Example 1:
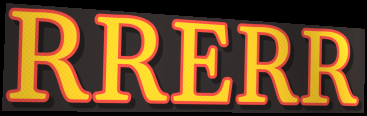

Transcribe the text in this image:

RRERR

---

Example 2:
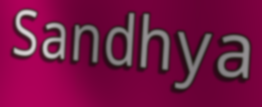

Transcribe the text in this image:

Sandhya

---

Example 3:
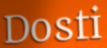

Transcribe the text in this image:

Dosti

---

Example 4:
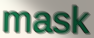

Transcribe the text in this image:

mask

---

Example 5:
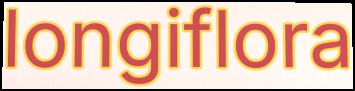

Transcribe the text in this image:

longiflora